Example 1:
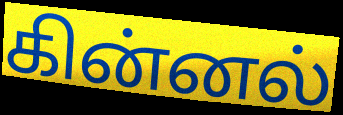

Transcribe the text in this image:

கின்னல்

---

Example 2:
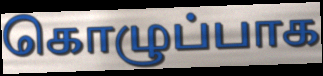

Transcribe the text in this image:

கொழுப்பாக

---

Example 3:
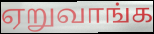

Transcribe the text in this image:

ஏறுவாங்க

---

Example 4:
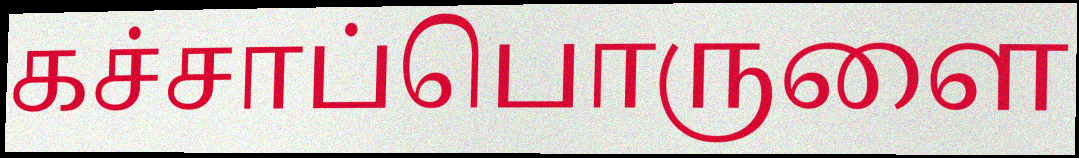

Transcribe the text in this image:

கச்சாப்பொருளை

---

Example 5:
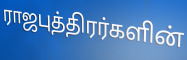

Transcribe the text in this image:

ராஜபுத்திரர்களின்